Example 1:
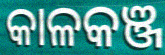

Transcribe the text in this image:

କାଳକଞ୍ଜ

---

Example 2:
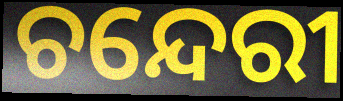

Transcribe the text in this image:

ଚନ୍ଦେରୀ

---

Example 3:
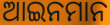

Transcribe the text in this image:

ଆଇନମାନ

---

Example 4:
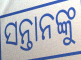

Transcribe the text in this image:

ସନ୍ତାନଙ୍କୁ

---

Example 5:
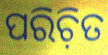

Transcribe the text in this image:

ପରିଚ଼ିତ